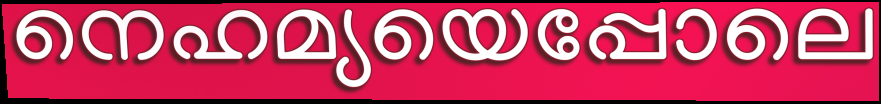
നെഹമ്യയെപ്പോലെ